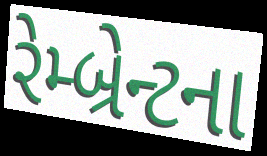
રેમ્બ્રેન્ટના